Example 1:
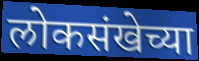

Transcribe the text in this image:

लोकसंखेच्या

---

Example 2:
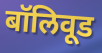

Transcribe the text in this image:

बॉलिवूड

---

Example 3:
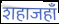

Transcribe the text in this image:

शहाजहाँ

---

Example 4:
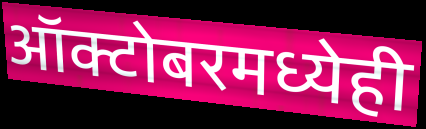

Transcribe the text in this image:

ऑक्टोबरमध्येही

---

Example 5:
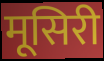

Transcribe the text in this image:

मूसिरी